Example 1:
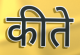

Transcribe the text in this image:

कीते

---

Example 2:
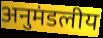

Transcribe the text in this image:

अनुमंडलीय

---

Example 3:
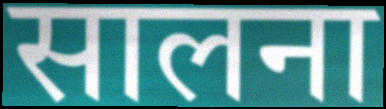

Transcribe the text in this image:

सालना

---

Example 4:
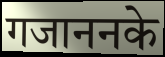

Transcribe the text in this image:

गजाननके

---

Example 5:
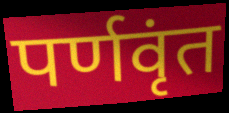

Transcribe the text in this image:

पर्णवृंत